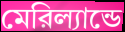
মেরিল্যান্ডে